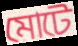
মোটে